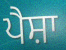
ਪੈਸ਼ਾ